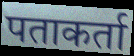
पताकर्ता